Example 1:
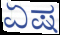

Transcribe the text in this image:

ಏಷ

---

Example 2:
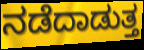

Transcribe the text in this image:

ನಡೆದಾಡುತ್ತ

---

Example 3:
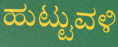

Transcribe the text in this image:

ಹುಟ್ಟುವಳಿ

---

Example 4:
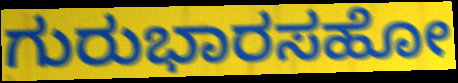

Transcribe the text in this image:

ಗುರುಭಾರಸಹೋ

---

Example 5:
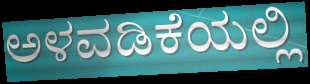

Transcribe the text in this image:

ಅಳವಡಿಕೆಯಲ್ಲಿ